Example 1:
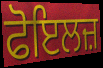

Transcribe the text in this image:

ਫੋਇਲਜ਼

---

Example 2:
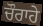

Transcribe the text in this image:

ਚੌਰਾਹੇ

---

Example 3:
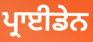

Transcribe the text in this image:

ਪ੍ਰਾਈਡੇਨ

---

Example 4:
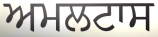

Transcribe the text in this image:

ਅਮਲਟਾਸ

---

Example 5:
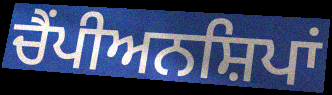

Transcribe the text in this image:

ਚੈਂਪੀਅਨਸ਼ਿਪਾਂ